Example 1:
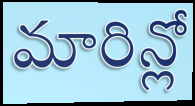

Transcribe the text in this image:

మారిన్లో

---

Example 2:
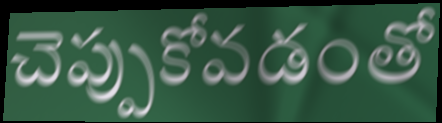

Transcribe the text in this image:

చెప్పుకోవడంతో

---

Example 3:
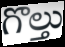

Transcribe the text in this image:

గొల్తు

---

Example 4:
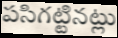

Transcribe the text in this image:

పసిగట్టినట్లు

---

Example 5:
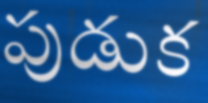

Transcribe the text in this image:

పుడుక